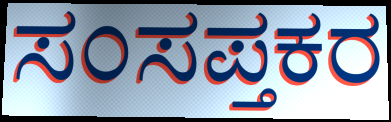
ಸಂಸಪ್ತಕರ